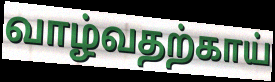
வாழ்வதற்காய்